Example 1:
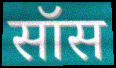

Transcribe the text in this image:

सॉस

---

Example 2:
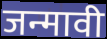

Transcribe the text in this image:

जन्मावी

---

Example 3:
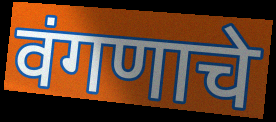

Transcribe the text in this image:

वंगणाचे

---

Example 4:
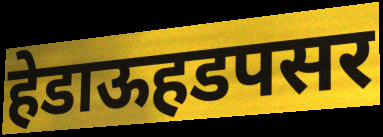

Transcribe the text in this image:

हेडाऊहडपसर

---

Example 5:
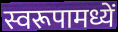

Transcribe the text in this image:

स्वरूपामध्यें